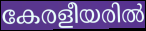
കേരളീയരിൽ